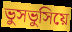
ভুসভুসিয়ে